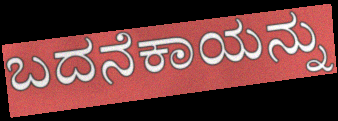
ಬದನೆಕಾಯನ್ನು